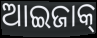
ଆଇଜାକ୍